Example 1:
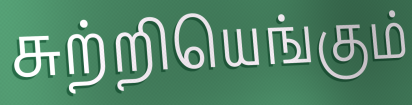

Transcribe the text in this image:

சுற்றியெங்கும்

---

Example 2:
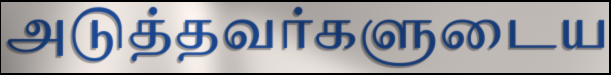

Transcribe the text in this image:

அடுத்தவர்களுடைய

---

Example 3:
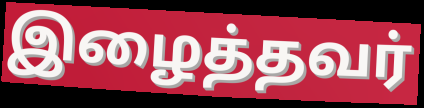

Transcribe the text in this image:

இழைத்தவர்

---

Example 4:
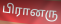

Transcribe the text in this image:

பிரானரு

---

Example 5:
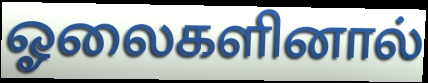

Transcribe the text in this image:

ஓலைகளினால்